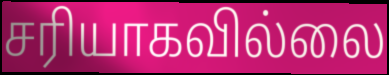
சரியாகவில்லை